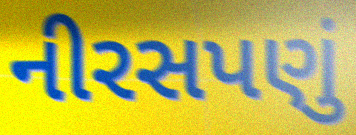
નીરસપણું